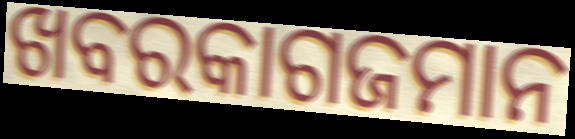
ଖବରକାଗଜମାନ